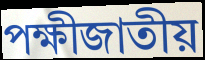
পক্ষীজাতীয়